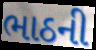
ભાઠની